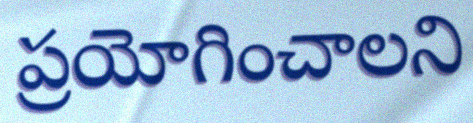
ప్రయోగించాలని